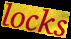
locks